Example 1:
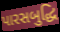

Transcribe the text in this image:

પારસબુદ્ધિ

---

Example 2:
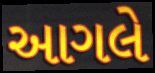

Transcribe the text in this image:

આગલે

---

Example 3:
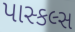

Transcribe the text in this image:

પાસ્કલ્સ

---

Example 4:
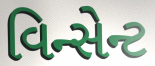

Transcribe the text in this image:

વિન્સેન્ટ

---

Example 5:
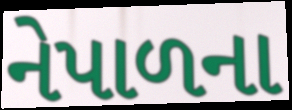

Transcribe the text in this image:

નેપાળના